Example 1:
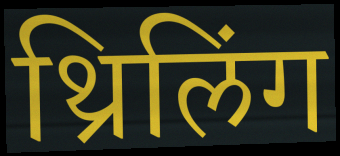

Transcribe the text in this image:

थ्रिलिंग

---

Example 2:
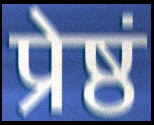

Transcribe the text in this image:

प्रेष्ठं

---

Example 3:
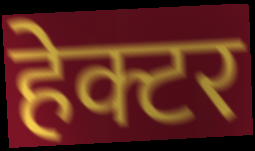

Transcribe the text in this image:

हेक्टर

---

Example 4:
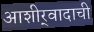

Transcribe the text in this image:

आशीर्वादाची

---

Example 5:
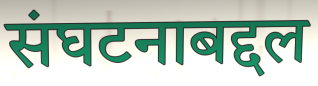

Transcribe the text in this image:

संघटनाबद्दल